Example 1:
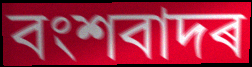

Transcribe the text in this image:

বংশবাদৰ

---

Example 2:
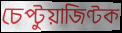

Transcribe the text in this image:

চেপ্টুয়াজিণ্টক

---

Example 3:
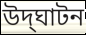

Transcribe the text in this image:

উদ্‌ঘাটন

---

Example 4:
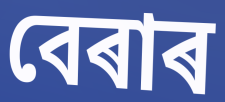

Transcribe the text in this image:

বেৰাৰ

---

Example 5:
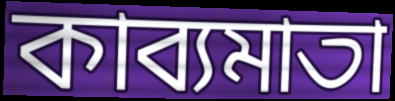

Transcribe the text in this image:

কাব্যমাতা